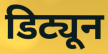
डिट्यून